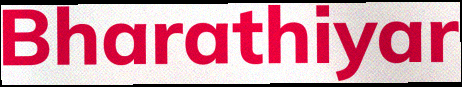
Bharathiyar